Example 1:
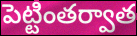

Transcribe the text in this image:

పెట్టింతర్వాత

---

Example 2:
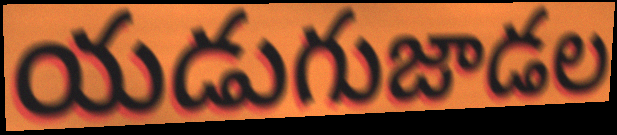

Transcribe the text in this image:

యడుగుజాడల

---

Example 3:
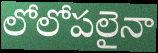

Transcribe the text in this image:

లోలోపలైనా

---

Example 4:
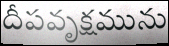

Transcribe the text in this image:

దీపవృక్షమును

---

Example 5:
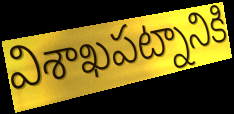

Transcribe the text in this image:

విశాఖపట్నానికి